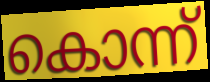
കൊന്ന്